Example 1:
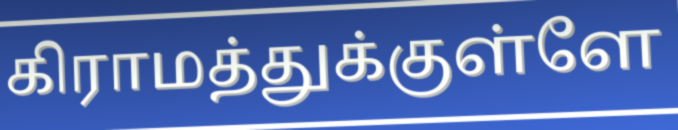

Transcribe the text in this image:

கிராமத்துக்குள்ளே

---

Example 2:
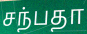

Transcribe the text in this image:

சந்பதா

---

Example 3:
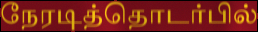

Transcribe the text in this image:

நேரடித்தொடர்பில்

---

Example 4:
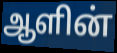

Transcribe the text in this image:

ஆளின்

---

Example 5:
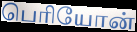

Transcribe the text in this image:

பெரியோன்